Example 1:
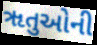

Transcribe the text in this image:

ૠતુઓની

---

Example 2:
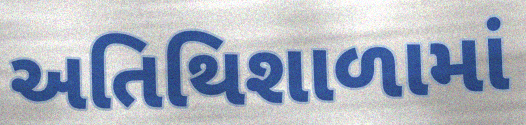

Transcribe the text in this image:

અતિથિશાળામાં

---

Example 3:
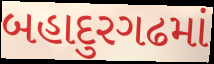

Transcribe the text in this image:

બહાદુરગઢમાં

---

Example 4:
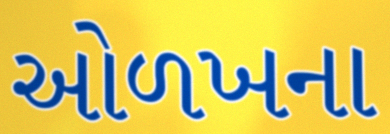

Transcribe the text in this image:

ઓળખના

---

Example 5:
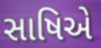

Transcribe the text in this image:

સાષિએ